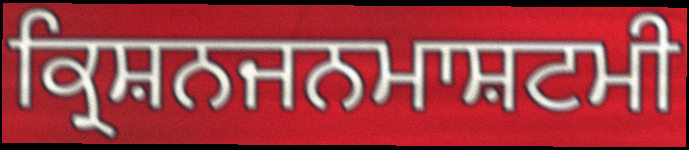
ਕ੍ਰਿਸ਼ਨਜਨਮਾਸ਼ਟਮੀ